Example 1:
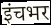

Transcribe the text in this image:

इंचभर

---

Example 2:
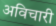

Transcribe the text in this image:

अविचारी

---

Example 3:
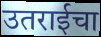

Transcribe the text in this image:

उतराईचा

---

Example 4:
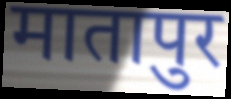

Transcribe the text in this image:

मातापुर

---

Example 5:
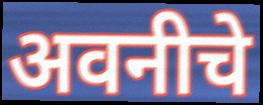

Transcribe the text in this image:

अवनीचे